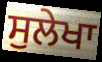
ਸੁਲੇਖਾ